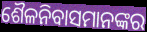
ଶୈଳନିବାସମାନଙ୍କର